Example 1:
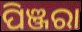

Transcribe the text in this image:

ପିଞ୍ଜରା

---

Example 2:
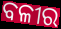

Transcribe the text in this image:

ବଳୀର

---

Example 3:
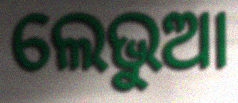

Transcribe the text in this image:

ଲେଭୁଆ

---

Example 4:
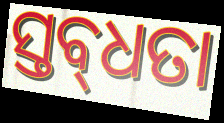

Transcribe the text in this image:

ସ୍ତବ୍‌ଧତା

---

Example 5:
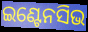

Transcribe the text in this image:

ଇଣ୍ଟେନସିଭ